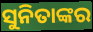
ସୁନିତାଙ୍କର